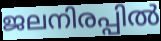
ജലനിരപ്പിൽ